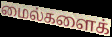
மைல்களைக்